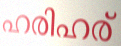
ഹരിഹര്